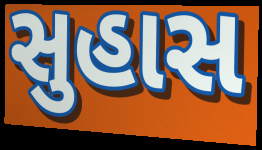
સુહાસ